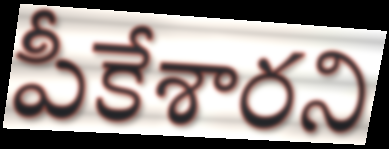
పీకేశారని